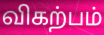
விகற்பம்